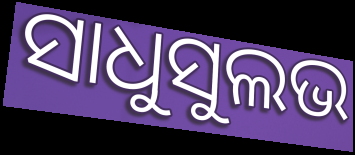
ସାଧୁସୁଲଭ